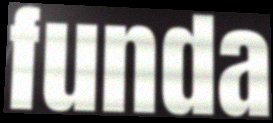
funda